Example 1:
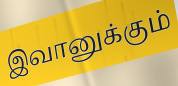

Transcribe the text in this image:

இவானுக்கும்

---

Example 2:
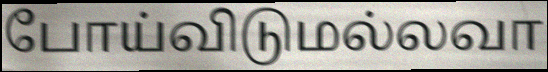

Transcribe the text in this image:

போய்விடுமல்லவா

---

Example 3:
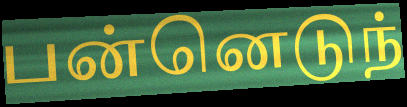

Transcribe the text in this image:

பன்னெடுந்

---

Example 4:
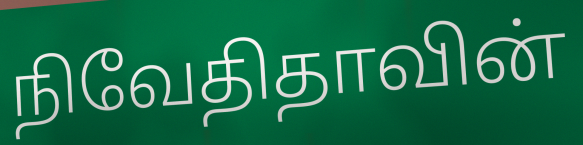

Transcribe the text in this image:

நிவேதிதாவின்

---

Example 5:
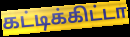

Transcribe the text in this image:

கட்டிக்கிட்டா